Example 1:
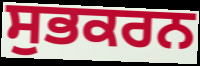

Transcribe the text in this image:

ਸੁਭਕਰਨ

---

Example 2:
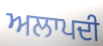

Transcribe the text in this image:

ਅਲਾਪਦੀ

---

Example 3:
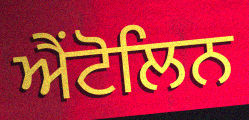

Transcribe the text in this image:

ਐਂਟੋਲਿਨ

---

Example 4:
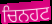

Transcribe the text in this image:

ਚਿਨਹਟ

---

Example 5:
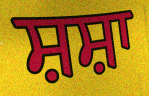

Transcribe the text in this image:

ਸ਼ਸ਼ਾ